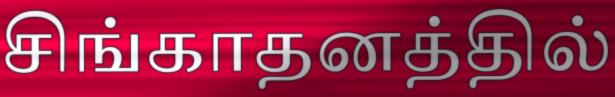
சிங்காதனத்தில்